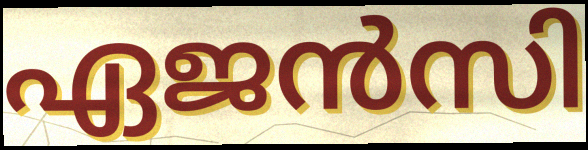
ഏജൻസി